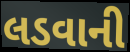
લડવાની